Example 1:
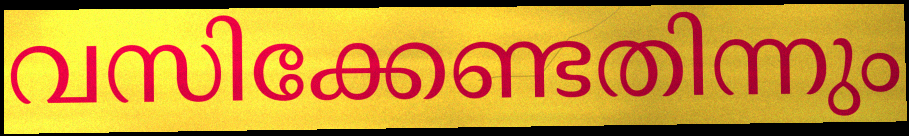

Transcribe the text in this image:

വസിക്കേണ്ടതിന്നും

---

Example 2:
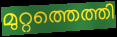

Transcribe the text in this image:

മുറ്റത്തെത്തി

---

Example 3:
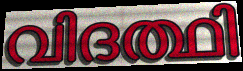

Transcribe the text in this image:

വിദത്ഥി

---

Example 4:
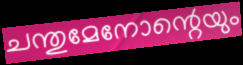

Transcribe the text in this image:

ചന്തുമേനോന്റെയും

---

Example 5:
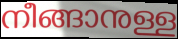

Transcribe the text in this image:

നീങ്ങാനുള്ള